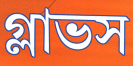
গ্লাভস